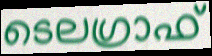
ടെലഗ്രാഫ്